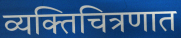
व्यक्तिचित्रणात